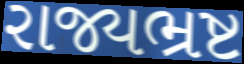
રાજ્યભ્રષ્ટ